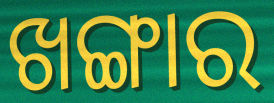
ଖଙ୍ଗାର